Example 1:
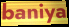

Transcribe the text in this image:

baniya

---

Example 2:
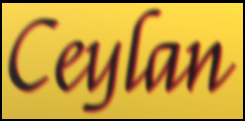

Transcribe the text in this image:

Ceylan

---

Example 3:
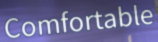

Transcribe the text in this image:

Comfortable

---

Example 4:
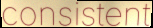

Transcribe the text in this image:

consistent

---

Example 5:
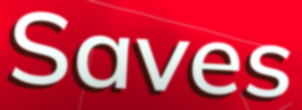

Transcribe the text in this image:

Saves